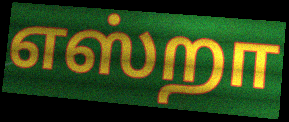
எஸ்றா